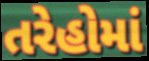
તરેહોમાં